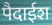
पैदाईश